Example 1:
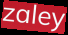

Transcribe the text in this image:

zaley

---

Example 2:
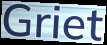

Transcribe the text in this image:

Griet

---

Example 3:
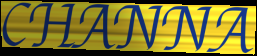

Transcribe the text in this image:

CHANNA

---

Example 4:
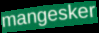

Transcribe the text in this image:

mangesker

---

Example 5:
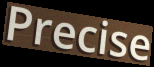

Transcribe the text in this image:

Precise